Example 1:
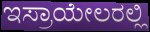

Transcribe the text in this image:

ಇಸ್ರಾಯೇಲರಲ್ಲಿ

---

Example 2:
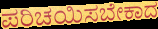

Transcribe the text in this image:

ಪರಿಚಯಿಸಬೇಕಾದ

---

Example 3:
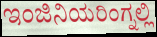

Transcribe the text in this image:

ಇಂಜಿನಿಯರಿಂಗ್ನಲ್ಲಿ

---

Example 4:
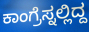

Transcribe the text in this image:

ಕಾಂಗ್ರೆಸ್ನಲ್ಲಿದ್ದ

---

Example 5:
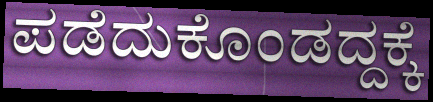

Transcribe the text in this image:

ಪಡೆದುಕೊಂಡದ್ದಕ್ಕೆ